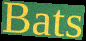
Bats